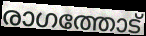
രാഗത്തോട്